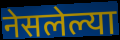
नेसलेल्या